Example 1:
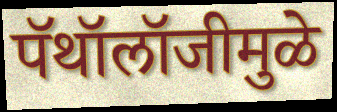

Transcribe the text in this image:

पॅथॉलॉजीमुळे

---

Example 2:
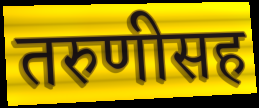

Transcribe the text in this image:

तरुणीसह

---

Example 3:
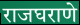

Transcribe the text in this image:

राजघराणे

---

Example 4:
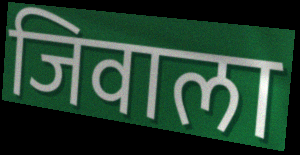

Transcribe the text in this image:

जिवाला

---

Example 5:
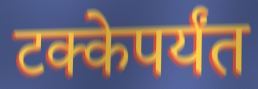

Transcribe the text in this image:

टक्केपर्यंत